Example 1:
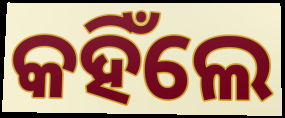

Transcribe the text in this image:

କହିଁଲେ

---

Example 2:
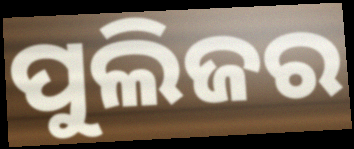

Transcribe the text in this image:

ପୁଲିଜର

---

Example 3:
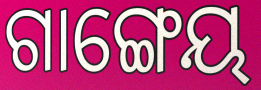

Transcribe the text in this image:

ଗାଙ୍ଗେୟ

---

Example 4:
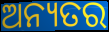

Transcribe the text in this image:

ଅନ୍ୟତର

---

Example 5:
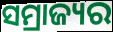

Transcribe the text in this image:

ସମ୍ରାଜ୍ୟର